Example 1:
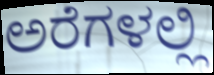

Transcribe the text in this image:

ಅರೆಗಳಲ್ಲಿ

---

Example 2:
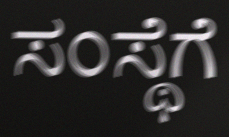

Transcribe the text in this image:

ಸಂಸ್ಥೆಗೆ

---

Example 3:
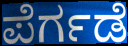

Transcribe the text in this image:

ಪೆರ್ಗಡೆ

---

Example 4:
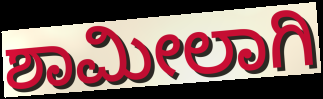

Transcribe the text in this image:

ಶಾಮೀಲಾಗಿ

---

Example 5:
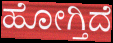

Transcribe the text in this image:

ಹೋಗ್ತಿದೆ